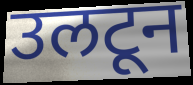
उलटून